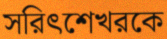
সরিৎশেখরকে